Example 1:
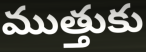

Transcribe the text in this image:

ముత్తుకు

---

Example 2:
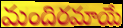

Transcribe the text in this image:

మందిరమాయే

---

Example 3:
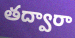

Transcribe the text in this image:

తద్వారా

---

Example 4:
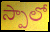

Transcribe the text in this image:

స్పాలో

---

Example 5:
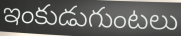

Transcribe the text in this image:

ఇంకుడుగుంటలు